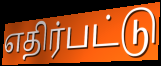
எதிர்பட்டு